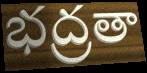
భద్రతా